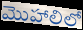
మొహాలిలో